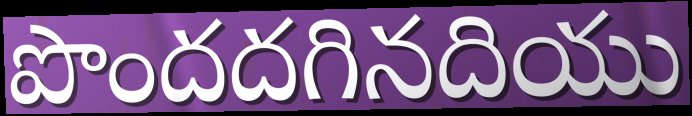
పొందదగినదియు